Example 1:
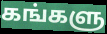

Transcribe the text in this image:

கங்களு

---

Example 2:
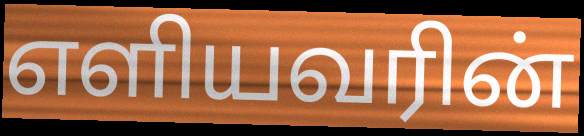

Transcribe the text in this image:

எளியவரின்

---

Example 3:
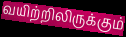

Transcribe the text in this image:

வயிற்றிலிருக்கும்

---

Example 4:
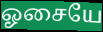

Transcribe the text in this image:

ஓசையே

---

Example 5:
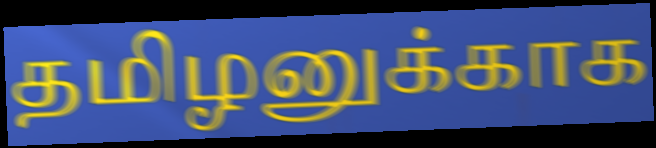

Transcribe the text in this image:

தமிழனுக்காக